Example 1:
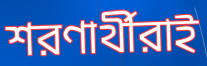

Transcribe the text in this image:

শরণার্থীরাই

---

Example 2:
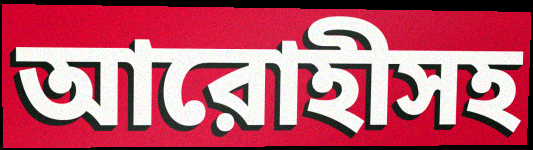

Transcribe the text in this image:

আরোহীসহ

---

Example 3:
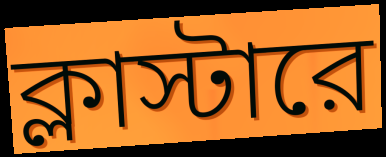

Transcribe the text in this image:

ক্লাস্টারে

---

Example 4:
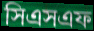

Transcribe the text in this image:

সিএসএফ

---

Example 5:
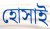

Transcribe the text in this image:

হোসাই